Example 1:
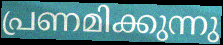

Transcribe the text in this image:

പ്രണമിക്കുന്നു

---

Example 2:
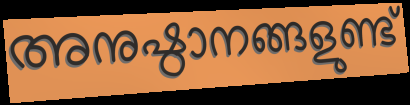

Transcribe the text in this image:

അനുഷ്ഠാനങ്ങളുണ്ട്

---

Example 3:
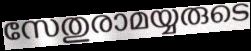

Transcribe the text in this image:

സേതുരാമയ്യരുടെ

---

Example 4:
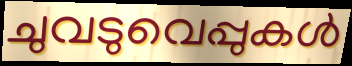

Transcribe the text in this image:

ചുവടുവെപ്പുകൾ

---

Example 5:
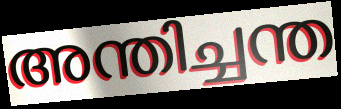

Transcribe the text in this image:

അന്തിച്ചന്ത